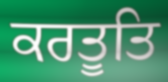
ਕਰਤੂਤਿ